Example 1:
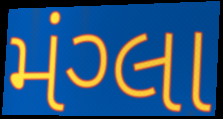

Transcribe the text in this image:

મંગ્લા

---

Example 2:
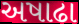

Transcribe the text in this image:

અષાઢા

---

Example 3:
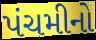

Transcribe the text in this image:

પંચમીનો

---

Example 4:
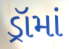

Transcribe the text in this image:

ડ્રૉમાં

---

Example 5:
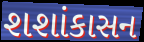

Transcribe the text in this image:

શશાંકાસન